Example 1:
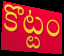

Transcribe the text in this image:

కొట్టం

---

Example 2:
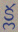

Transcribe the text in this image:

క్ల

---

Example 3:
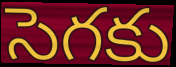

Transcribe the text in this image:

సెగకు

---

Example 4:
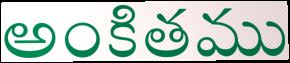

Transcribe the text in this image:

అంకితము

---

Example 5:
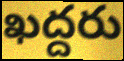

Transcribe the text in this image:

ఖద్దరు